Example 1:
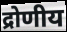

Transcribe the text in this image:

द्रोणीय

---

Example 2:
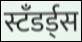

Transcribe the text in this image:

स्टँडर्ड्स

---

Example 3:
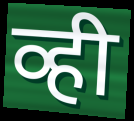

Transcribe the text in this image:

व्ही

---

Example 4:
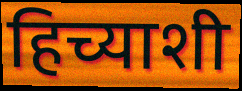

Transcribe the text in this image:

हिच्याशी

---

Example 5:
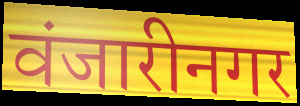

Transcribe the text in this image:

वंजारीनगर